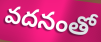
వదనంతో